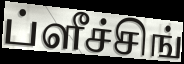
ப்ளீச்சிங்